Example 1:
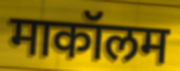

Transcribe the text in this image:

माकॉलम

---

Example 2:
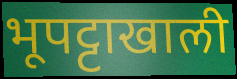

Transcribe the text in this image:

भूपट्टाखाली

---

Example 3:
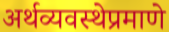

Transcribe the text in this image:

अर्थव्यवस्थेप्रमाणे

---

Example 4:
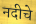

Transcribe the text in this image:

नदीचे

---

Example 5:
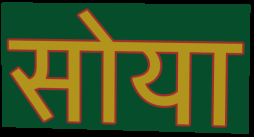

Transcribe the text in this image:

सोया